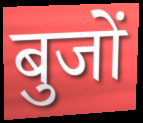
बुजों